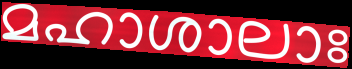
മഹാശാലാഃ